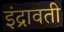
इंद्रावती